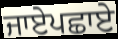
ਜਾਏਪਛਾਏ